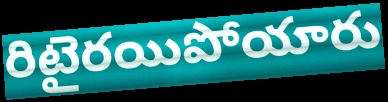
రిటైరయిపోయారు